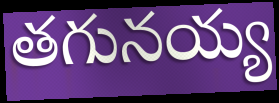
తగునయ్య